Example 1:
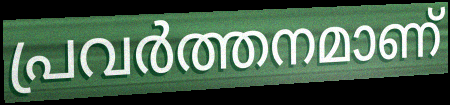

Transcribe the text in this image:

പ്രവർത്തനമാണ്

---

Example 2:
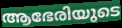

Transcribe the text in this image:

ആഭേരിയുടെ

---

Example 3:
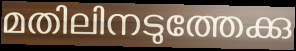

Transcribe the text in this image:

മതിലിനടുത്തേക്കു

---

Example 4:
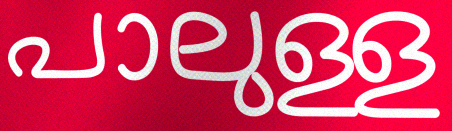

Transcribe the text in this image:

പാലുള്ള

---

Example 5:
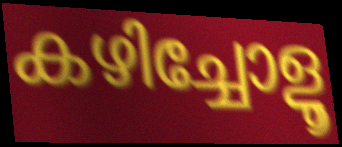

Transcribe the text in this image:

കഴിച്ചോളൂ